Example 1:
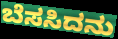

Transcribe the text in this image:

ಬೆಸಸಿದನು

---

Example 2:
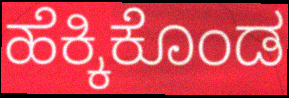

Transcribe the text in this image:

ಹೆಕ್ಕಿಕೊಂಡ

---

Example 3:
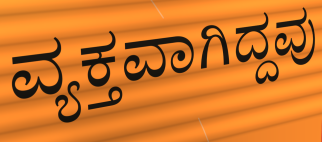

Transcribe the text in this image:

ವ್ಯಕ್ತವಾಗಿದ್ದವು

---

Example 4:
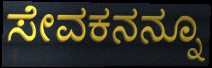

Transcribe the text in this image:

ಸೇವಕನನ್ನೂ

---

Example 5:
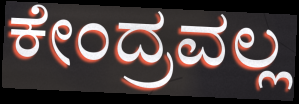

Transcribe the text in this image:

ಕೇಂದ್ರವಲ್ಲ